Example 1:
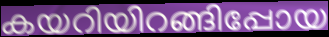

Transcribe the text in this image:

കയറിയിറങ്ങിപ്പോയ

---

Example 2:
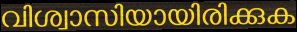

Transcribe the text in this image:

വിശ്വാസിയായിരിക്കുക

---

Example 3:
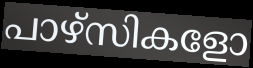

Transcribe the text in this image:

പാഴ്സികളോ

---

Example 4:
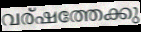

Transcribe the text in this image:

വര്ഷത്തേക്കു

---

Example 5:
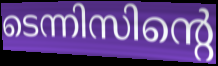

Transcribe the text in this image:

ടെന്നിസിന്റെ